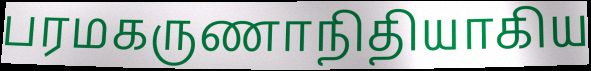
பரமகருணாநிதியாகிய